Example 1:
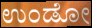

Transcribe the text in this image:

ಉಂಡೋ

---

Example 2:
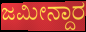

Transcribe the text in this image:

ಜಮೀನ್ದಾರ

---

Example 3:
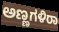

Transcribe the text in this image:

ಅಣ್ಣಗಳಿರಾ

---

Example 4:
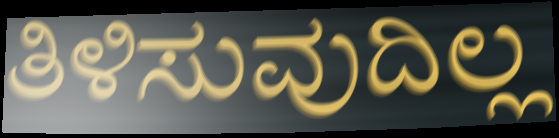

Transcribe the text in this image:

ತಿಳಿಸುವುದಿಲ್ಲ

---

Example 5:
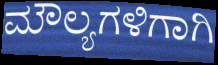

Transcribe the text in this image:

ಮೌಲ್ಯಗಳಿಗಾಗಿ